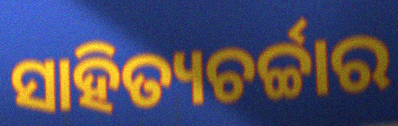
ସାହିତ୍ୟଚର୍ଚ୍ଚାର